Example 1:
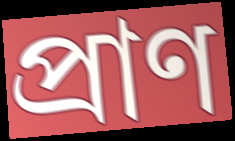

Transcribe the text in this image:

প্রাণ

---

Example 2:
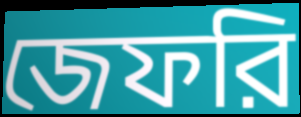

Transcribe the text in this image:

জেফরি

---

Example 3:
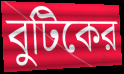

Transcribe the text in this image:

বুটিকের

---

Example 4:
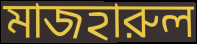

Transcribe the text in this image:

মাজহারুল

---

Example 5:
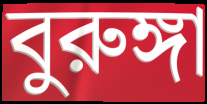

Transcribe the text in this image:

বুরুঙ্গা